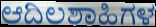
ಆದಿಲಶಾಹಿಗಳ